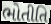
ભોતીતિ